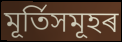
মূৰ্তিসমূহৰ